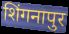
शिंगनापुर